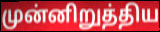
முன்னிறுத்திய